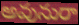
అవునురా